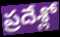
ప్రదేశ్లో